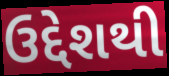
ઉદ્દેશથી